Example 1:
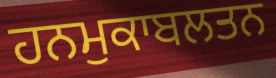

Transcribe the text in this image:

ਹਨਮੁਕਾਬਲਤਨ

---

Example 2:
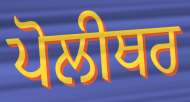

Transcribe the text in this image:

ਪੋਲੀਥਰ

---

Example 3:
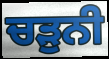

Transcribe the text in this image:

ਚੜੁਨੀ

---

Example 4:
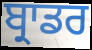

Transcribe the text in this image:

ਬ੍ਰਾਡਰ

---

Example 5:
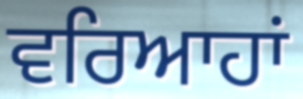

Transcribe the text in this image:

ਵਰਿਆਹਾਂ